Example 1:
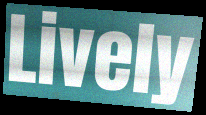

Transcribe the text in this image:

Lively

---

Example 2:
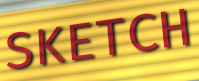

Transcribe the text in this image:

SKETCH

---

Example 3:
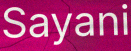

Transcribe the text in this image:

Sayani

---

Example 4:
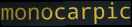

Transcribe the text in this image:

monocarpic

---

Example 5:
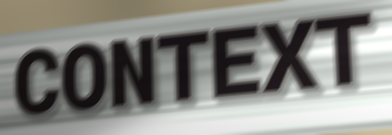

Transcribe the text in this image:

CONTEXT